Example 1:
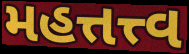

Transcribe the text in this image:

મહત્તત્ત્વ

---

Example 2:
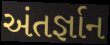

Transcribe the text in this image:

અંતર્જ્ઞાન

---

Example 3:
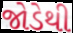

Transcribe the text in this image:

જોડેથી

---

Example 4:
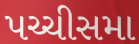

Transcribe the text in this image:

પચ્ચીસમા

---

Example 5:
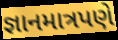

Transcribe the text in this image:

જ્ઞાનમાત્રપણે